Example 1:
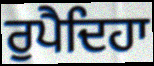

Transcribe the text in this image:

ਰੁਪੈਦਿਹਾ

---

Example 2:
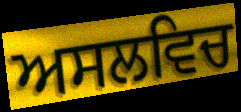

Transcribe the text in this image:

ਅਸਲਵਿਚ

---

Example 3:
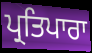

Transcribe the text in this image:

ਪ੍ਰਤਿਪਾਰਾ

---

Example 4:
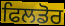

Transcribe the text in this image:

ਫਿਲਡੋਰ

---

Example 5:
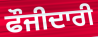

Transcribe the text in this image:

ਫੌਜੀਦਾਰੀ